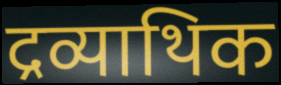
द्रव्याथिक